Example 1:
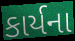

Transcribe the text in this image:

કાર્યના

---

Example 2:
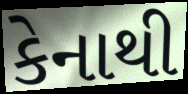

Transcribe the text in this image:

કેનાથી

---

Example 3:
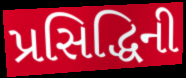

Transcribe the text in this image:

પ્રસિદ્ધિની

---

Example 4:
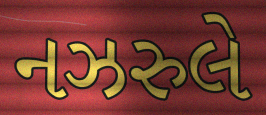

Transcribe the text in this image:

નઝરુલે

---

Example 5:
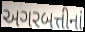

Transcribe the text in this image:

અગરબત્તીનાં